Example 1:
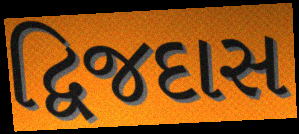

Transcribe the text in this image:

દ્વિજદાસ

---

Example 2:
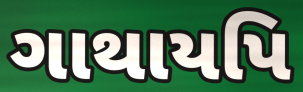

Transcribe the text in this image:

ગાથાયપિ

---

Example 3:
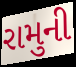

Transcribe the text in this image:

રામુની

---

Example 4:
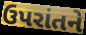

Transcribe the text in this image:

ઉપરાંતને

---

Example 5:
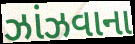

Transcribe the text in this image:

ઝાંઝવાના